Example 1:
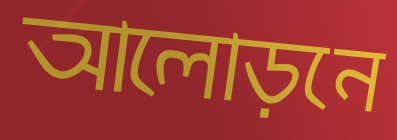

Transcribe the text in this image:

আলোড়নে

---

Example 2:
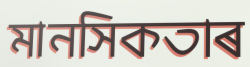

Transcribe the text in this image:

মানসিকতাৰ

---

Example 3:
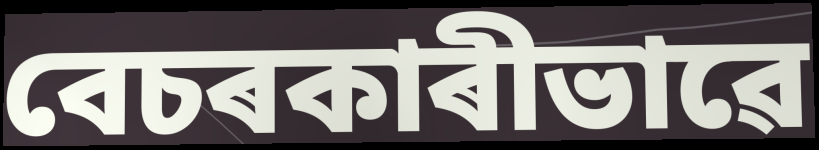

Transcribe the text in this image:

বেচৰকাৰীভাৱে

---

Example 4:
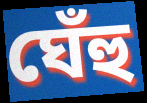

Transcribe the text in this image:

ঘেঁহু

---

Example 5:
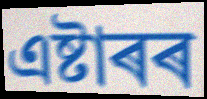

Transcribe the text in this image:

এষ্টাৰৰ